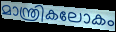
മാന്ത്രികലോകം